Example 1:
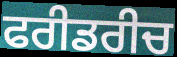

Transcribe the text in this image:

ਫਰੀਡਰੀਚ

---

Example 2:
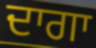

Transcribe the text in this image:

ਦਾਗਾ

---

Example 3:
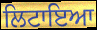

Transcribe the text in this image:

ਲਿਟਾਇਆ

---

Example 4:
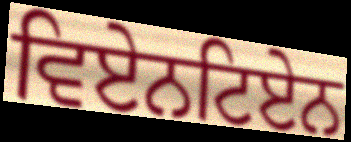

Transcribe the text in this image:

ਵਿਏਨਟਿਏਨ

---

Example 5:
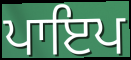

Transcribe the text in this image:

ਪਾਇਪ